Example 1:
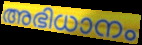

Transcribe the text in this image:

അഭിധാനം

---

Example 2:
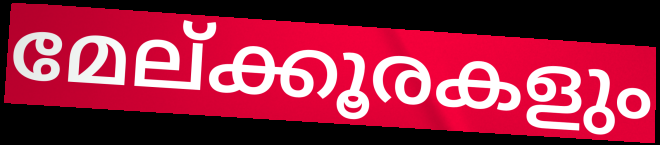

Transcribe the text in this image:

മേല്ക്കൂരകളും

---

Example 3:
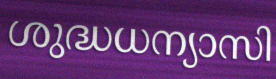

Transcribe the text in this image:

ശുദ്ധധന്യാസി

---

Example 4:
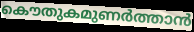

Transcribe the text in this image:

കൌതുകമുണർത്താൻ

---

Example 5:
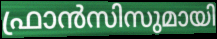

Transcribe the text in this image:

ഫ്രാൻസിസുമായി